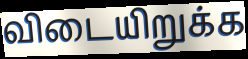
விடையிறுக்க